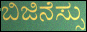
ಬಿಜಿನೆಸ್ಸು